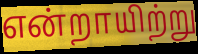
என்றாயிற்று